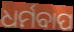
ଧର୍ମବାପ